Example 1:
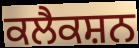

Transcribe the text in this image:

ਕਲੈਕਸ਼ਨ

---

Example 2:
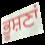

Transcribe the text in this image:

ਭੂਸ਼ਣਾਂ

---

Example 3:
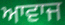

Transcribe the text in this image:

ਆਵਾਜ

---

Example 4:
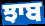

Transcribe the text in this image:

ਝਾਬ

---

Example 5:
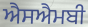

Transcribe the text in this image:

ਐਸਐਮਬੀ